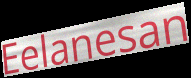
Eelanesan